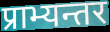
प्राभ्यन्तर